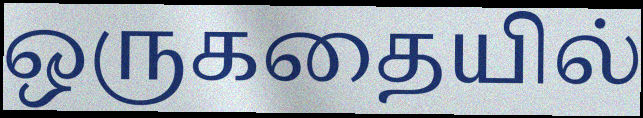
ஒருகதையில்